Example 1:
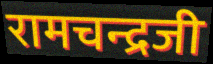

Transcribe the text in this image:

रामचन्द्रजी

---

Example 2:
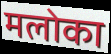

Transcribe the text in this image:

मलोका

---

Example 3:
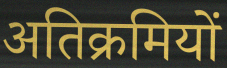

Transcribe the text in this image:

अतिक्रमियों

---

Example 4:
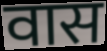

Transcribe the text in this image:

वास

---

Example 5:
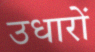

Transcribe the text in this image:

उधारों